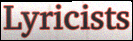
Lyricists